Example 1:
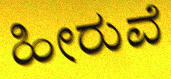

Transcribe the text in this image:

ಹೀರುವೆ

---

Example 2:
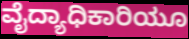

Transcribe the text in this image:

ವೈದ್ಯಾಧಿಕಾರಿಯೂ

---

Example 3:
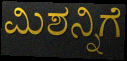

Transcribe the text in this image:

ಮಿಶನ್ನಿಗೆ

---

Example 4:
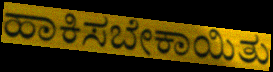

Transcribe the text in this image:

ಹಾಕಿಸಬೇಕಾಯಿತು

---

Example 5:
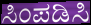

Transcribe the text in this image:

ಸಿಂಪಡಿಸಿ